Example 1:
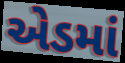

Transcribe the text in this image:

એડમાં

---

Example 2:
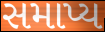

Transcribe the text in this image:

સમાપ્ય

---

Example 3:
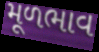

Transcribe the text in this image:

મૂળભાવ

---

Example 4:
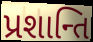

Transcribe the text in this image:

પ્રશાન્તિ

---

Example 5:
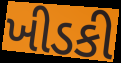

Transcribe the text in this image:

ખીડકી